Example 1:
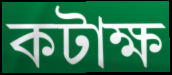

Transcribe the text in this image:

কটাক্ষ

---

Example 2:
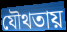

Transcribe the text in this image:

যৌথতায়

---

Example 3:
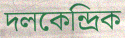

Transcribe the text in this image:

দলকেন্দ্রিক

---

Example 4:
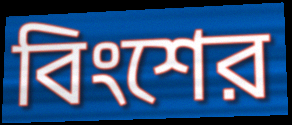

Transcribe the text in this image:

বিংশের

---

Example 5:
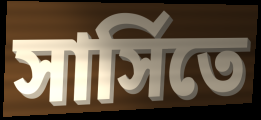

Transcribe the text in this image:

সার্সিতে